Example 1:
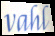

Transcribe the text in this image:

vahl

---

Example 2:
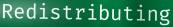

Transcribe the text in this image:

Redistributing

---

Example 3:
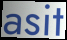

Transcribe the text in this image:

asit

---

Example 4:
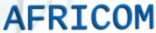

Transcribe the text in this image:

AFRICOM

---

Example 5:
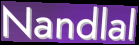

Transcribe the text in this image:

Nandlal